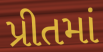
પ્રીતમાં